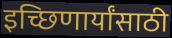
इच्छिणार्यांसाठी